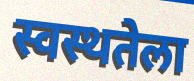
स्वस्थतेला